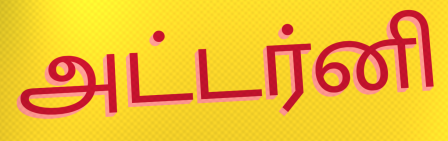
அட்டர்னி